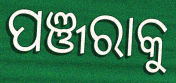
ପଞ୍ଜରାକୁ